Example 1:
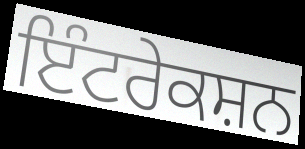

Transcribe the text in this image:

ਇੰਟਰੇਕਸ਼ਨ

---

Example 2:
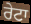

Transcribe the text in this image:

ਰੇਟਾ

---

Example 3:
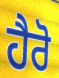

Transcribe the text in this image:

ਹੈਰੋ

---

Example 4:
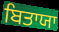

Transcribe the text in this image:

ਬਿਤਾਯਾ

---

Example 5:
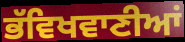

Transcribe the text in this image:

ਭੱਵਿਖਵਾਣੀਆਂ